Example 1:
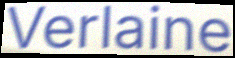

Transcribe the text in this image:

Verlaine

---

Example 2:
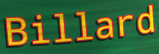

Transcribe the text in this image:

Billard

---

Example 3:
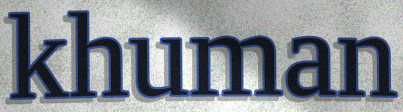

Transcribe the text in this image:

khuman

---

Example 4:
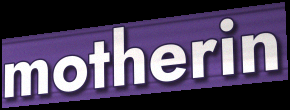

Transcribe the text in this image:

motherin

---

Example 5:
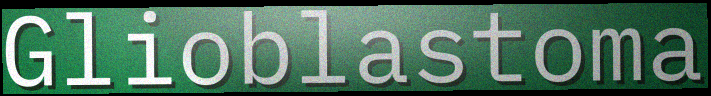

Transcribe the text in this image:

Glioblastoma